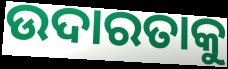
ଉଦାରତାକୁ